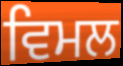
ਵਿਮਲ